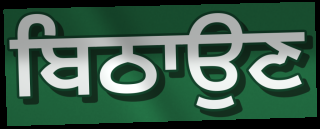
ਬਿਠਾਉਣ